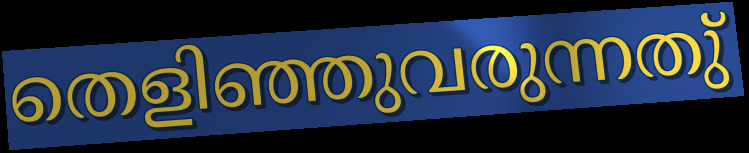
തെളിഞ്ഞുവരുന്നതു്